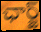
ఛార్జ్